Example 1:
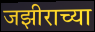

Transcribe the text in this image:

जझीराच्या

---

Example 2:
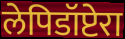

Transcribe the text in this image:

लेपिडॉप्टेरा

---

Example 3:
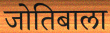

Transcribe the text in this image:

जोतिबाला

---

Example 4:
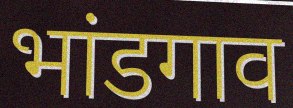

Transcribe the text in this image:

भांडगाव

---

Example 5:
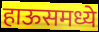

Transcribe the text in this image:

हाऊसमध्ये